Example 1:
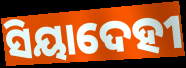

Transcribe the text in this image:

ସିୟାଦେହୀ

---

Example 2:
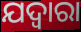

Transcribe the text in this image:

ଯଦ୍ୱାରା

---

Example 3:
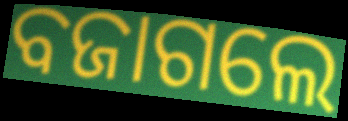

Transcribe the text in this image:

ବଜାଗଲେ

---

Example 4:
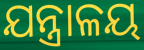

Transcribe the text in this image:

ଯନ୍ତ୍ରାଳୟ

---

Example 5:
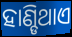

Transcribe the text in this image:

ହାଣ୍ଡିଥାଏ